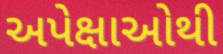
અપેક્ષાઓથી